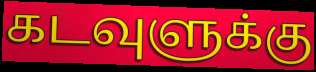
கடவுளுக்கு